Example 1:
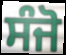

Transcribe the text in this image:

ਸੰਜੋ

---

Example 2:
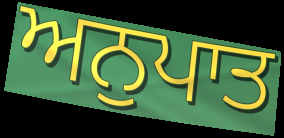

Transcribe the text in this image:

ਅਨੁਪਾਤ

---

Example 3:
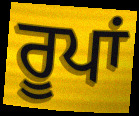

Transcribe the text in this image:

ਰੂਪਾਂ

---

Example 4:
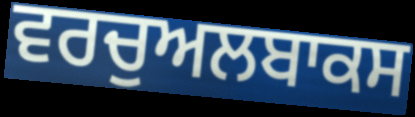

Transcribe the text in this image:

ਵਰਚੁਅਲਬਾਕਸ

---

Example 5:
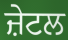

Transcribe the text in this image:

ਜ਼ੇਟਲ